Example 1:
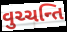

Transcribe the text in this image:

વુચ્ચન્તિ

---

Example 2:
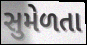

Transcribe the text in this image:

સુમેળતા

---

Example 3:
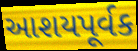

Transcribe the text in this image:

આશયપૂર્વક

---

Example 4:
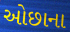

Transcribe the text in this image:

ઓછાના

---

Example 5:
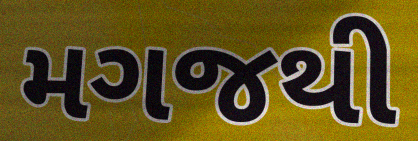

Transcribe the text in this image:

મગજથી